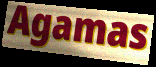
Agamas